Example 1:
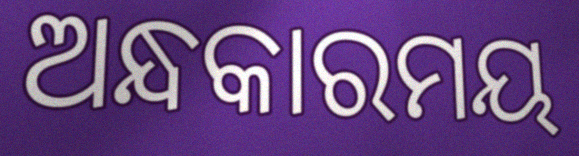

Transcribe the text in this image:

ଅନ୍ଧକାରମୟ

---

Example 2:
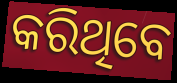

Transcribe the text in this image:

କରିଥିବେ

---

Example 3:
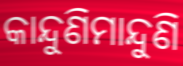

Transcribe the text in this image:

କାନ୍ଦୁଣିମାନ୍ଦୁଣି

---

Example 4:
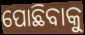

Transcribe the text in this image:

ପୋଛିବାକୁ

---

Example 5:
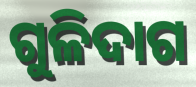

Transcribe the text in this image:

ଗୁଳିଦାଗ